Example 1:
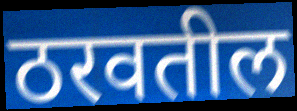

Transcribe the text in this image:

ठरवतील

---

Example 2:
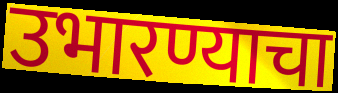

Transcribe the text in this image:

उभारण्याचा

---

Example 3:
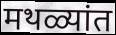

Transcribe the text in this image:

मथळ्यांत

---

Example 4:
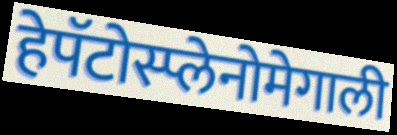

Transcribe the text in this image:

हेपॅटोस्प्लेनोमेगाली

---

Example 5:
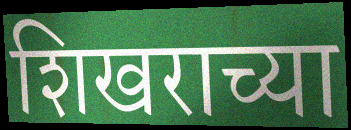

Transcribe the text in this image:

शिखराच्या